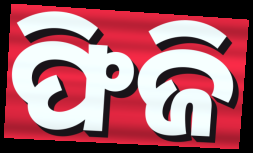
ଫିଜି